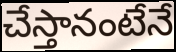
చేస్తానంటేనే